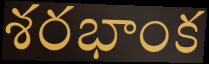
శరభాంక